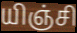
யிஞ்சி